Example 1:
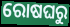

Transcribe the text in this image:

ରୋଷଘରୁ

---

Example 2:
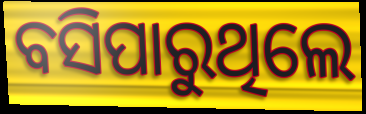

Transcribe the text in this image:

ବସିପାରୁଥିଲେ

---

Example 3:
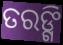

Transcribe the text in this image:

ତରଙ୍ଗି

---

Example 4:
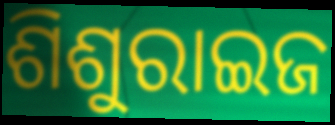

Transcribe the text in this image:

ଶିଶୁରାଇଜ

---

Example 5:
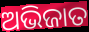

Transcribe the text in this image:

ଅଭିଜାତ